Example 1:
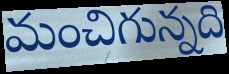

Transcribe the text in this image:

మంచిగున్నది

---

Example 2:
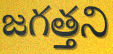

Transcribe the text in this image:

జగత్తని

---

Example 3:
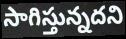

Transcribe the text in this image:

సాగిస్తున్నదని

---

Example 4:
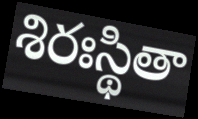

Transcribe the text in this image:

శిరఃస్థితా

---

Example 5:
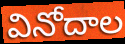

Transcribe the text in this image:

వినోదాల